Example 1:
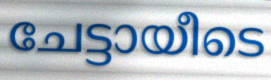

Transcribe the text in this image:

ചേട്ടായീടെ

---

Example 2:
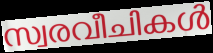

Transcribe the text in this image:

സ്വരവീചികൾ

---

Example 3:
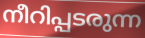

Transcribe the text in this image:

നീറിപ്പടരുന്ന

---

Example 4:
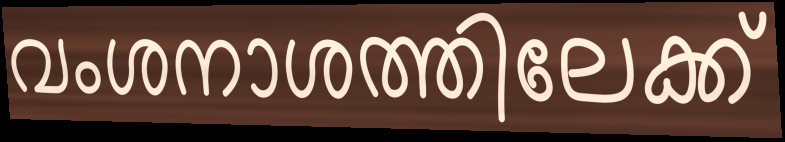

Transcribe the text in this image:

വംശനാശത്തിലേക്ക്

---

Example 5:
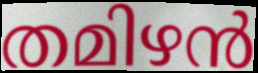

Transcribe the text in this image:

തമിഴൻ